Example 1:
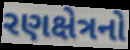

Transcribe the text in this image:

રણક્ષેત્રનો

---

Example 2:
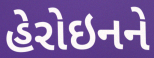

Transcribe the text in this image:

હેરોઇનને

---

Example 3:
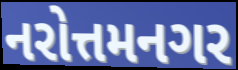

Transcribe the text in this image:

નરોત્તમનગર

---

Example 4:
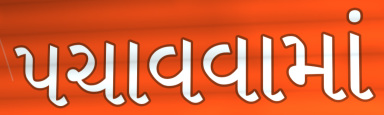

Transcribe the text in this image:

પચાવવામાં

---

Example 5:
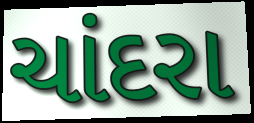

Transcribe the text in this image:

ચાંદરા